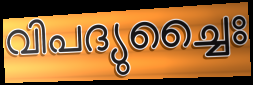
വിപദ്യുച്ചൈഃ